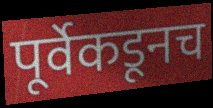
पूर्वेकडूनच